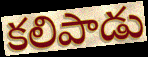
కలిపాడు